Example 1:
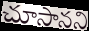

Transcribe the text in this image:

చూసానని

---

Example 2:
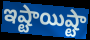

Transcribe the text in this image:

ఇష్టాయిష్టా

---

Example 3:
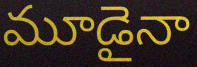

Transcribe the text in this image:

మూడైనా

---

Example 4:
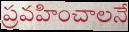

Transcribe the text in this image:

ప్రవహించాలనే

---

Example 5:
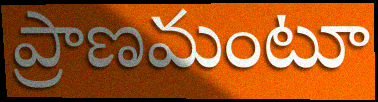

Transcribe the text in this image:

ప్రాణమంటూ